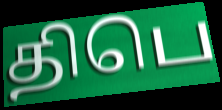
திபெ